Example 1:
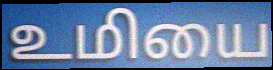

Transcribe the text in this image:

உமியை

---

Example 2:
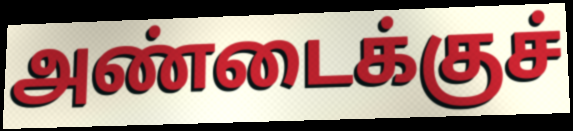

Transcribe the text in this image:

அண்டைக்குச்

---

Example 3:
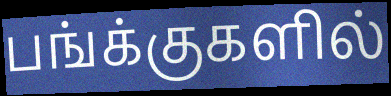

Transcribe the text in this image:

பங்க்குகளில்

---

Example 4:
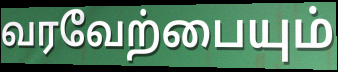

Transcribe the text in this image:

வரவேற்பையும்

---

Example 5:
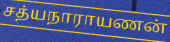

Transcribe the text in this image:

சத்யநாராயணன்